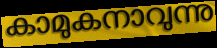
കാമുകനാവുന്നു